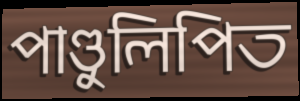
পাণ্ডুলিপিত